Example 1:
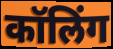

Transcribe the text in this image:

कॉलिंग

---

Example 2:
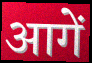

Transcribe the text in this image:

आगें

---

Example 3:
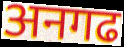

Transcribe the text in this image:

अनगढ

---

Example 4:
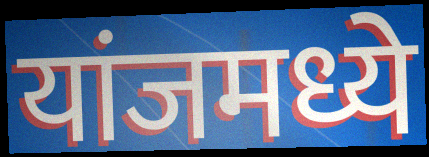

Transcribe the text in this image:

यांजमध्ये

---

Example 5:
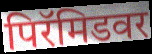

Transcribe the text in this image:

पिरॅमिडवर